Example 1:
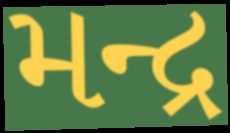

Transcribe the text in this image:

મન્દ્ર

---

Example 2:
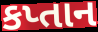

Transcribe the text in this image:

કપ્તાન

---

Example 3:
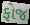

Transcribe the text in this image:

ફોજ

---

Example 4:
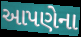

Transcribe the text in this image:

આપણેના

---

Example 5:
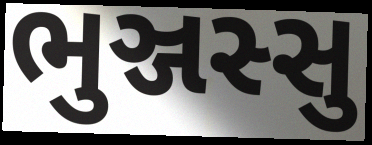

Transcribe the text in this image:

ભુઞ્જસ્સુ